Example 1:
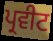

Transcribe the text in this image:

ਪ੍ਰਵੀਟ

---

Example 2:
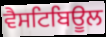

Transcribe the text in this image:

ਵੈਸਟਿਬਿਊਲ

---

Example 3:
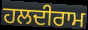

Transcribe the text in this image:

ਹਲਦੀਰਾਮ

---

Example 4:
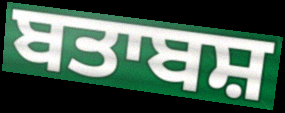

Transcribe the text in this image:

ਬਤਾਬਸ਼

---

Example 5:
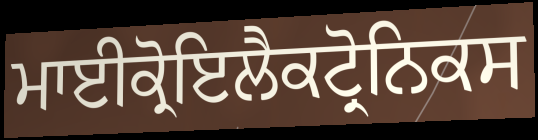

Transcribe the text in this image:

ਮਾਈਕ੍ਰੋਇਲੈਕਟ੍ਰੋਨਿਕਸ